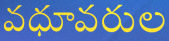
వధూవరుల